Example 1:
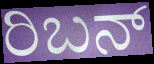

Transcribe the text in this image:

ರಿಬನ್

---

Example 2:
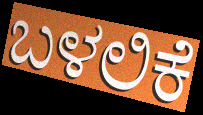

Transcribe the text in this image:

ಬಳಲಿಕೆ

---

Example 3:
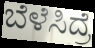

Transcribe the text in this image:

ಬೆಳೆಸಿದ್ರೆ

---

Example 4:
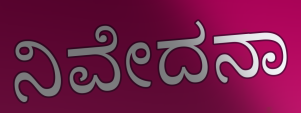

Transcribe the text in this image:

ನಿವೇದನಾ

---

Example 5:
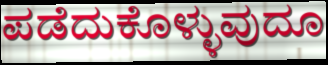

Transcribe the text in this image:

ಪಡೆದುಕೊಳ್ಳುವುದೂ